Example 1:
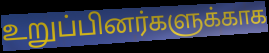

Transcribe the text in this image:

உறுப்பினர்களுக்காக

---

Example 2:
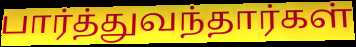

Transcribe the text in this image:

பார்த்துவந்தார்கள்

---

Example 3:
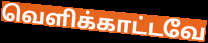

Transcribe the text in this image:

வெளிக்காட்டவே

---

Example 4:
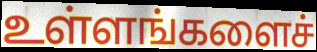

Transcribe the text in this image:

உள்ளங்களைச்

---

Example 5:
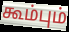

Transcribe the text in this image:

கூம்பும்